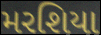
મરશિયા